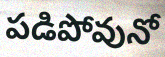
పడిపోవునో